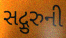
સદ્ગુરુની